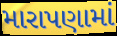
મારાપણામાં